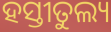
ହସ୍ତୀତୁଲ୍ୟ